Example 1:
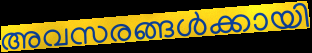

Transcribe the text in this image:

അവസരങ്ങൾക്കായി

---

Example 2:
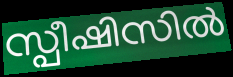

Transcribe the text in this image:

സ്പീഷിസിൽ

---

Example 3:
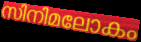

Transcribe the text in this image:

സിനിമലോകം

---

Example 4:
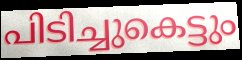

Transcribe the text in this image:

പിടിച്ചുകെട്ടും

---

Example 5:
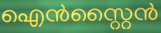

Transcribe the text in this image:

ഐൻസ്റ്റൈൻ